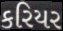
કરિયર